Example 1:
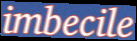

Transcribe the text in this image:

imbecile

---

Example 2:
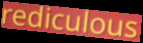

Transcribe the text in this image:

rediculous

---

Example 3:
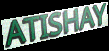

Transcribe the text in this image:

ATISHAY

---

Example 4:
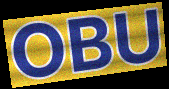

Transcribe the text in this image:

OBU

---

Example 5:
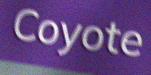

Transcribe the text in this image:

Coyote